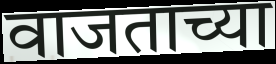
वाजताच्या